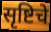
सृष्टिचे